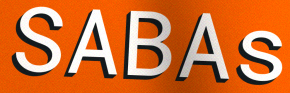
SABAs